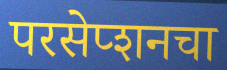
परसेप्शनचा